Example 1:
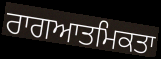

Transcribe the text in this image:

ਰਾਗਆਤਮਿਕਤਾ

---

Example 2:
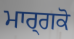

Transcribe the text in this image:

ਮਾਰ੍ਗਕੋ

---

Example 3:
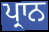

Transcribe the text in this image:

ਪ੍ਰਾਨ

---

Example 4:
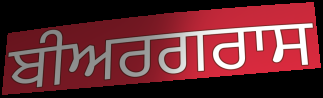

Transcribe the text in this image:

ਬੀਅਰਗਰਾਸ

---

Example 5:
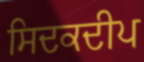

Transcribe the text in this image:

ਸਿਦਕਦੀਪ